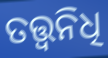
ତତ୍ତ୍ଵନିଧି